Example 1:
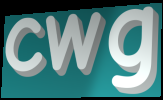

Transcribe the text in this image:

cwg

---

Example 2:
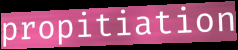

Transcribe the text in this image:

propitiation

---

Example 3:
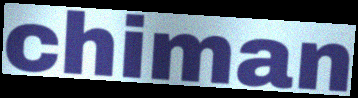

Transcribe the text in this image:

chiman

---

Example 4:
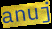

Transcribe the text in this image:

anuj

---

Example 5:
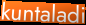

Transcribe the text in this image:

kuntaladi